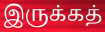
இருக்கத்